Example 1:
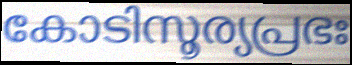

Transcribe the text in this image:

കോടിസൂര്യപ്രഭഃ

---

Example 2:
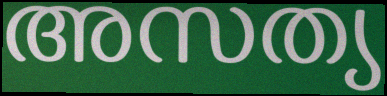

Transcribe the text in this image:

അസത്യ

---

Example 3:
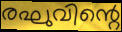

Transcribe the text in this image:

രഘുവിന്റെ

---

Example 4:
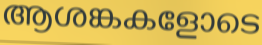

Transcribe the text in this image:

ആശങ്കകളോടെ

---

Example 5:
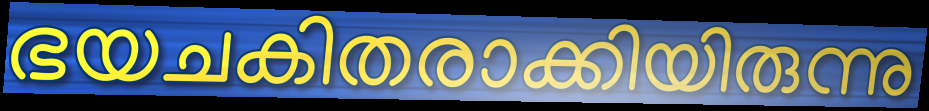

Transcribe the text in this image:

ഭയചകിതരാക്കിയിരുന്നു